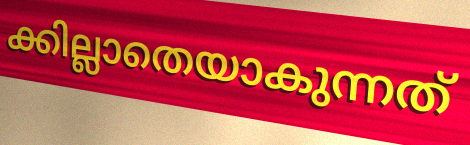
ക്കില്ലാതെയാകുന്നത്